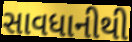
સાવધાનીથી